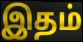
இதம்